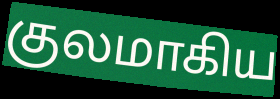
குலமாகிய